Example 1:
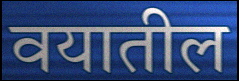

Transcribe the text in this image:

वयातील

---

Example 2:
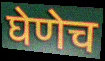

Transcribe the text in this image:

घेणेच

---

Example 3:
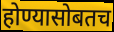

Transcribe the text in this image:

होण्यासोबतच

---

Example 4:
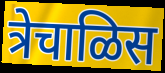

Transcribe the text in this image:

त्रेचाळिस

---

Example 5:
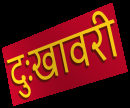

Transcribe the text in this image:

दुःखावरी